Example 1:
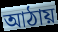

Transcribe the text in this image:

আঠায়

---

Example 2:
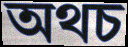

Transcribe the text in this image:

অথচ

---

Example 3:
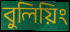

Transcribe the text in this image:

বুলিয়িং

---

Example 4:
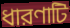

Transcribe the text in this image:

ধারণাটি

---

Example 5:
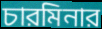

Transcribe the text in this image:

চারমিনার